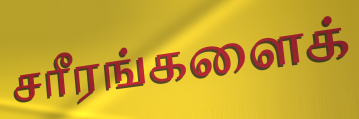
சரீரங்களைக்